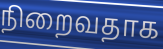
நிறைவதாக